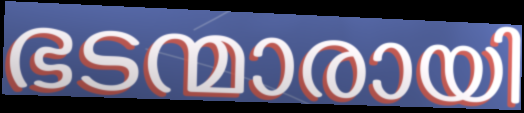
ഭടന്മാരായി